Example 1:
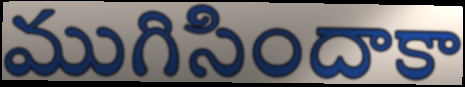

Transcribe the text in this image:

ముగిసిందాకా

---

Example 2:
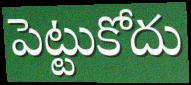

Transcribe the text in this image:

పెట్టుకోదు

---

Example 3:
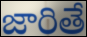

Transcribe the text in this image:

జారితే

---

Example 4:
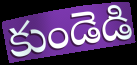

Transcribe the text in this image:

కుండెడి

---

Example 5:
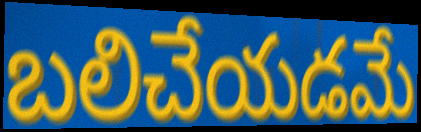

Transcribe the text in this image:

బలిచేయడమే